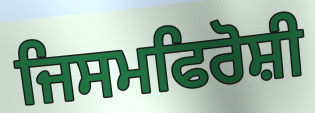
ਜਿਸਮਫਿਰੋਸ਼ੀ